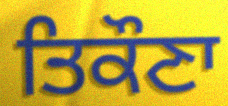
ਤਿਕੌਣਾ